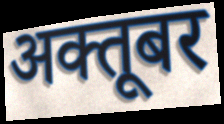
अक्तूबर